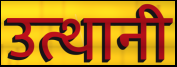
उत्थानी